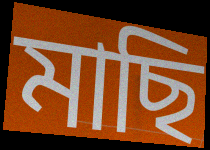
মাছি